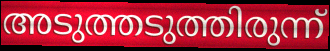
അടുത്തടുത്തിരുന്ന്